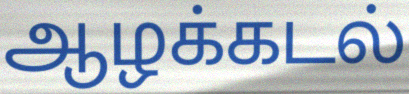
ஆழக்கடல்